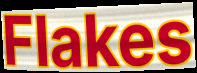
Flakes